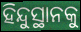
ହିନ୍ଦୁସ୍ଥାନକୁ